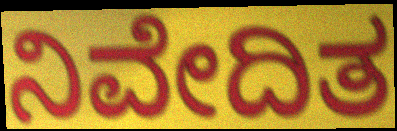
ನಿವೇದಿತ